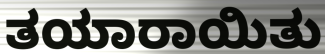
ತಯಾರಾಯಿತು